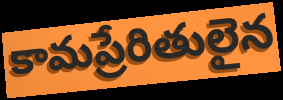
కామప్రేరితులైన